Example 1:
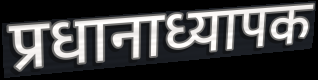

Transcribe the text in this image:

प्रधानाध्यापक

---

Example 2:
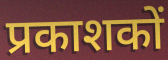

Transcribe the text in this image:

प्रकाशकों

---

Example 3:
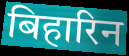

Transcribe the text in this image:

बिहारिन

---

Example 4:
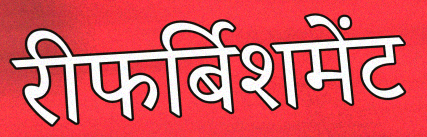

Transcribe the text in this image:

रीफर्बिशमेंट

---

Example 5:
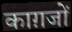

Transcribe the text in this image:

काग़जों